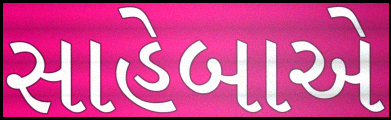
સાહેબાએ